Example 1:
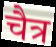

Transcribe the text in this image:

चैत्र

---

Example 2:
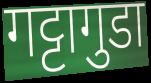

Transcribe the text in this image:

गट्टागुडा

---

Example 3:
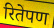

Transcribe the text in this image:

रितेपण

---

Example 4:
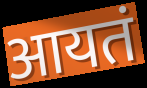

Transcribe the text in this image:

आयतं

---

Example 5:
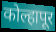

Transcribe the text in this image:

कोल्हापूर